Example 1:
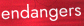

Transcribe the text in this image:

endangers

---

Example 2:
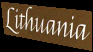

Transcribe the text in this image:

Lithuania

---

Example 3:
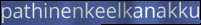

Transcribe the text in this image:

pathinenkeelkanakku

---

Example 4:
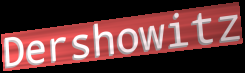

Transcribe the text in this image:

Dershowitz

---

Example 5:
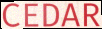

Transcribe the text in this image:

CEDAR